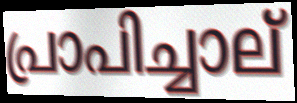
പ്രാപിച്ചാല്